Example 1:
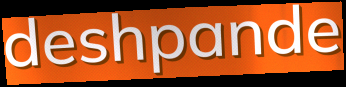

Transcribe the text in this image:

deshpande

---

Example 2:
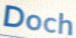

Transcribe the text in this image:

Doch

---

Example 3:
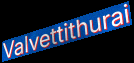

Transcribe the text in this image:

Valvettithurai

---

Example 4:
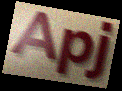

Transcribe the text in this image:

Apj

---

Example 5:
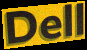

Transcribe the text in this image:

Dell